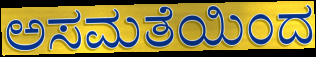
ಅಸಮತೆಯಿಂದ